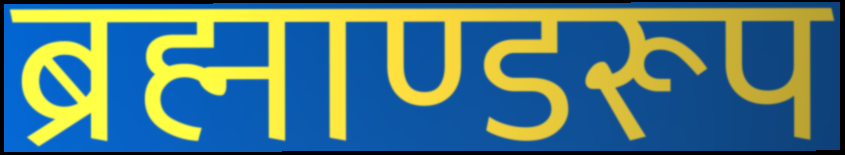
ब्रह्माण्डरूप